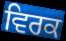
ਵਿਰਕ